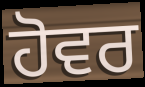
ਹੋਵਰ